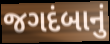
જગદંબાનું